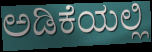
ಅಡಿಕೆಯಲ್ಲಿ